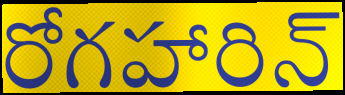
రోగహారిన్